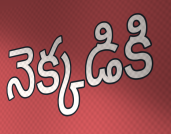
నెక్కడికి